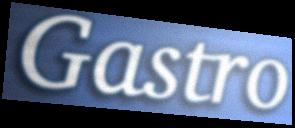
Gastro